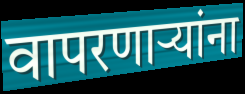
वापरणाऱ्यांना